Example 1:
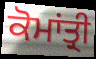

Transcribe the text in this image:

ਕੋਮਾਂਤ੍ਰੀ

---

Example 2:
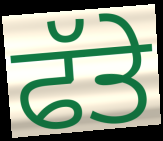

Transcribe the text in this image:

ਫੱਤੇ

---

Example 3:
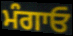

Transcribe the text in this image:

ਮੰਗਾਓ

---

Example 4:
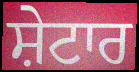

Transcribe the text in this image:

ਸ਼ੇਟਾਰ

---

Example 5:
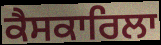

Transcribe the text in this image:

ਕੈਸਕਾਰਿਲਾ